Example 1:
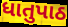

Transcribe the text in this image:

ધાતુપાઠ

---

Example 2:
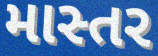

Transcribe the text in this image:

માસ્તર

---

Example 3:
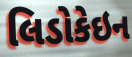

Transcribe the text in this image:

લિડોકેઇન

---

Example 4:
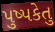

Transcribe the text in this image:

પુષ્પકેતુ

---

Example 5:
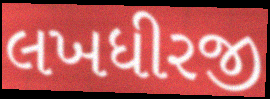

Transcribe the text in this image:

લખધીરજી